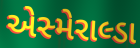
એસ્મેરાલ્ડા